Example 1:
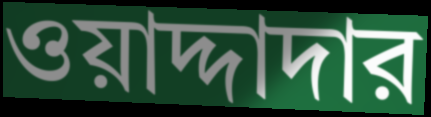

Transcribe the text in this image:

ওয়াদ্দাদার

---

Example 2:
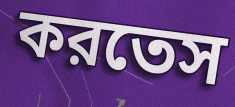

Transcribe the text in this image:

করতেস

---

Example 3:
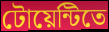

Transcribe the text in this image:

টোয়েন্টিতে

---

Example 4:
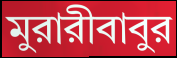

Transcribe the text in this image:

মুরারীবাবুর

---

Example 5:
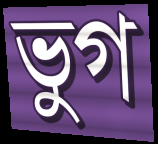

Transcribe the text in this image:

ভুগ